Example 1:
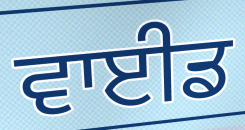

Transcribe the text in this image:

ਵਾਈਡ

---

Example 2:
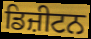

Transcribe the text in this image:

ਡਿਜ਼ੀਟਨ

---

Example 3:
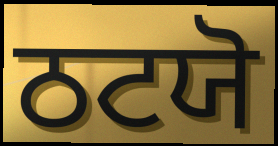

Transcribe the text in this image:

ਠਟਯੋ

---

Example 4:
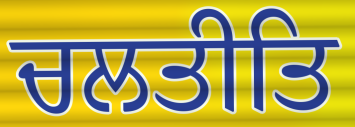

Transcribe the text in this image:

ਚਲਤੀਤਿ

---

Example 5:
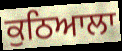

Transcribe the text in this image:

ਕੁਠਿਆਲਾ